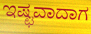
ಇಷ್ಟವಾದಾಗ